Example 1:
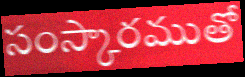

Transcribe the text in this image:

సంస్కారముతో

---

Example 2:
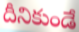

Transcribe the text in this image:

దీనికుండే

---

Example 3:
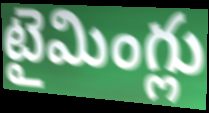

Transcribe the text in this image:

టైమింగ్లు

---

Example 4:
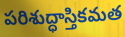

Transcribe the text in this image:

పరిశుద్ధాస్తికమత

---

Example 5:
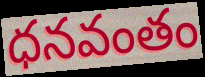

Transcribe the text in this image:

ధనవంతం